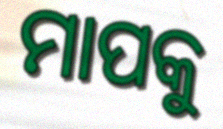
ମାପକୁ